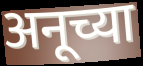
अनूच्या